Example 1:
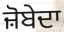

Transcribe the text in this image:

ਜ਼ੋਬੇਦਾ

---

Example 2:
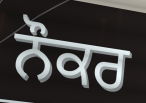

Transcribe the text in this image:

ਨੌਕਰ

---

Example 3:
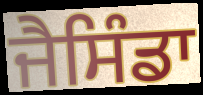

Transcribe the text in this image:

ਜੈਸਿੰਡਾ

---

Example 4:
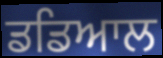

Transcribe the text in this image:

ਡਡਿਆਲ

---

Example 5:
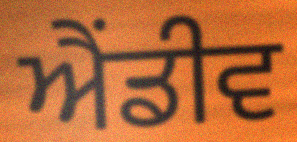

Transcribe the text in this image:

ਐਂਡੀਵ